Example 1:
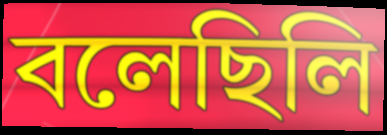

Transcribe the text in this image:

বলেছিলি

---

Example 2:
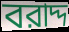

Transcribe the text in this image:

বরাদ্দ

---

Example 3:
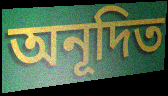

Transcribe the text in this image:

অনূদিত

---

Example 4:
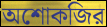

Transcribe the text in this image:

অশোকজির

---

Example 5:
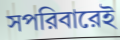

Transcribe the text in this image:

সপরিবারেই